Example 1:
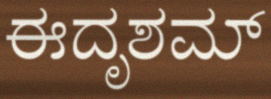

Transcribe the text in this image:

ಈದೃಶಮ್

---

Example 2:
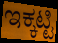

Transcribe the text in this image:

ಇಕ್ಕಟ್ಟಿ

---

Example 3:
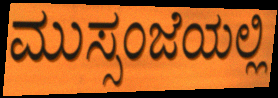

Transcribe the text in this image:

ಮುಸ್ಸಂಜೆಯಲ್ಲಿ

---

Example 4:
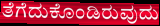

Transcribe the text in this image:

ತೆಗೆದುಕೊಂಡಿರುವುದು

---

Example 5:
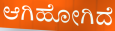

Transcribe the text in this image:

ಆಗಿಹೋಗಿದೆ